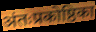
अंतःप्रकोष्ठिका